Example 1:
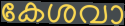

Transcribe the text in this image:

കേശവാ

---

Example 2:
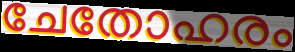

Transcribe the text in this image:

ചേതോഹരം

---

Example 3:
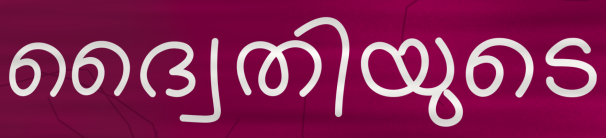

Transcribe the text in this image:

ദ്വൈതിയുടെ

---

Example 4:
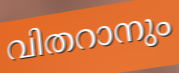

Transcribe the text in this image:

വിതറാനും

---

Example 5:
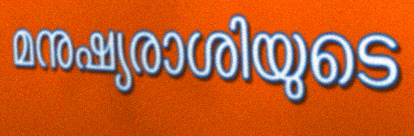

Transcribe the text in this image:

മനുഷ്യരാശിയുടെ